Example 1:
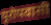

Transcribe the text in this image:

यूरोपवासी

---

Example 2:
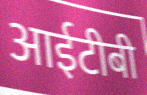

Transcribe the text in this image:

आईटीबी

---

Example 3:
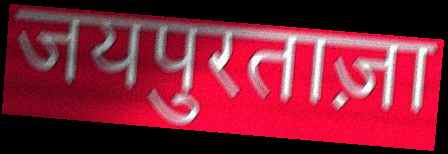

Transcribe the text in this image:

जयपुरताज़ा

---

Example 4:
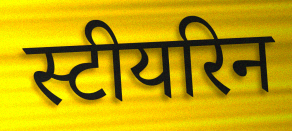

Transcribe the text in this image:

स्टीयरिन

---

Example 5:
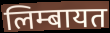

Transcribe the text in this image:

लिम्बायत